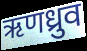
ॠणध्रुव